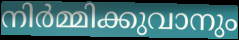
നിർമ്മിക്കുവാനും